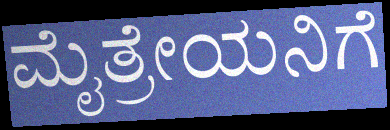
ಮೈತ್ರೇಯನಿಗೆ